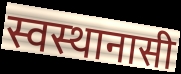
स्वस्थानासी